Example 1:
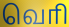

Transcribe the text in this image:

வெரி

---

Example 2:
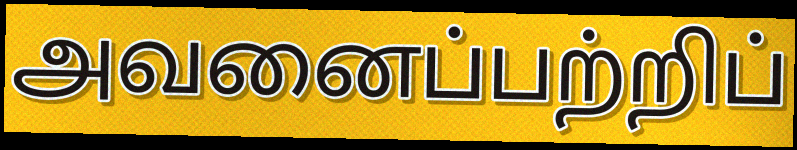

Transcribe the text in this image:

அவனைப்பற்றிப்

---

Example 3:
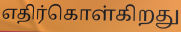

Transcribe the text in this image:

எதிர்கொள்கிறது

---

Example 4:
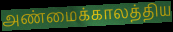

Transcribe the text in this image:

அண்மைக்காலத்திய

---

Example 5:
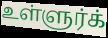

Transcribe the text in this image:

உள்ளுர்க்